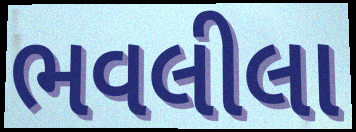
ભવલીલા